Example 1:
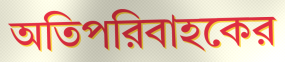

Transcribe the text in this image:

অতিপরিবাহকের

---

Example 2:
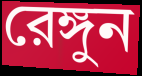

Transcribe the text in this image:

রেঙ্গুন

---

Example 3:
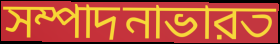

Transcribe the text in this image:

সম্পাদনাভারত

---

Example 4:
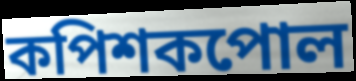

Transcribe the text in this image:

কপিশকপোল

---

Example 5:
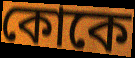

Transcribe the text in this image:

কোকে